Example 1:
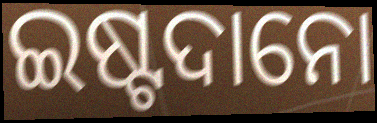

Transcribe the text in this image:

ଇଷ୍ଟଦାନୋ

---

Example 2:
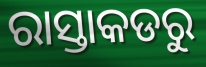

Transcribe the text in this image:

ରାସ୍ତାକଡରୁ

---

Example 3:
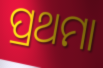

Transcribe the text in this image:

ପ୍ରଥମା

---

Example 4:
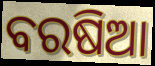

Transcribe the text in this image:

ବରଷିଆ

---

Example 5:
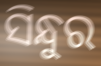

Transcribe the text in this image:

ସିନ୍ଧୁର